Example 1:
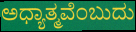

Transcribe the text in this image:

ಅಧ್ಯಾತ್ಮವೆಂಬುದು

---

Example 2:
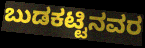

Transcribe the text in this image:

ಬುಡಕಟ್ಟಿನವರ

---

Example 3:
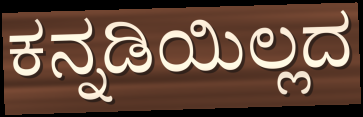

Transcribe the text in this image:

ಕನ್ನಡಿಯಿಲ್ಲದ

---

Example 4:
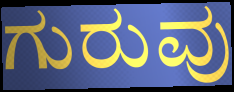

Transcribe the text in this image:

ಗುರುವು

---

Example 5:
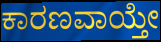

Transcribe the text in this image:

ಕಾರಣವಾಯ್ತೇ